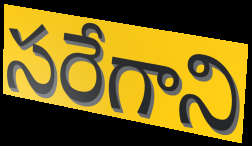
సరేగాని